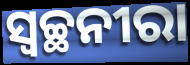
ସ୍ବଚ୍ଛନୀରା